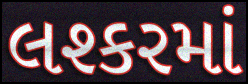
લશ્કરમાં